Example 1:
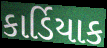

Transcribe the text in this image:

કાર્ડિયાક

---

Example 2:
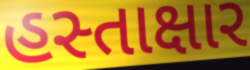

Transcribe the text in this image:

હસ્તાક્ષાર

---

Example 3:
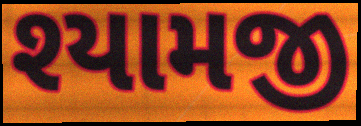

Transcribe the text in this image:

શ્યામજી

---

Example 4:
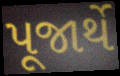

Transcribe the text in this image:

પૂજાર્થે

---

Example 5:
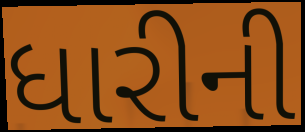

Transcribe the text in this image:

ધારીની